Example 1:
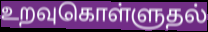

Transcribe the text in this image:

உறவுகொள்ளுதல்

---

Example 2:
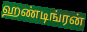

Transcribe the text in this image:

ஹண்டிங்ரன்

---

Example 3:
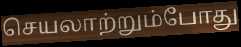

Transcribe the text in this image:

செயலாற்றும்போது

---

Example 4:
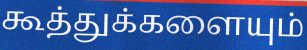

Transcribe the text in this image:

கூத்துக்களையும்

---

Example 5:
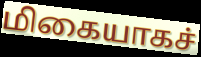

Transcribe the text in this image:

மிகையாகச்